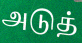
அடுத்